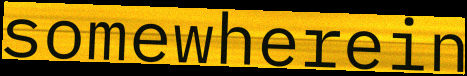
somewherein